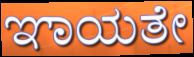
ಞಾಯತೇ